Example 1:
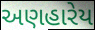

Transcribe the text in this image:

અણહારેય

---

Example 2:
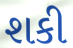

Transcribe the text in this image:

શકી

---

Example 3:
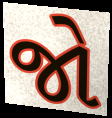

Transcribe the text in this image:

જો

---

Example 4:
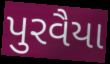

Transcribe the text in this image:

પુરવૈયા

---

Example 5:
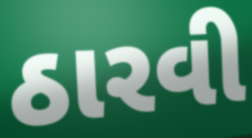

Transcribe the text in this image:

ઠારવી